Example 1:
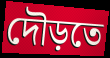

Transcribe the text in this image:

দৌড়তে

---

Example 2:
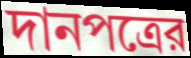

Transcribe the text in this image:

দানপত্রের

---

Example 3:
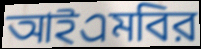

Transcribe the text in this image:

আইএমবির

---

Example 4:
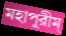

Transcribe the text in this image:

মহাপুরীম্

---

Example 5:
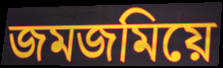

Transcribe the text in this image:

জমজমিয়ে